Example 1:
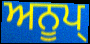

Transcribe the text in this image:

ਅਨੂਪ੍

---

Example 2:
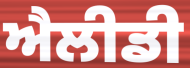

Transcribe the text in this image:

ਐਲੀਡੀ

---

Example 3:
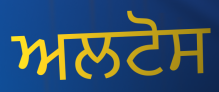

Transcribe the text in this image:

ਅਲਟੋਸ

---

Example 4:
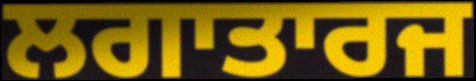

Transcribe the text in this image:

ਲਗਾਤਾਰਜ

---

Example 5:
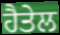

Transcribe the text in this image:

ਹੈਤੇਲ